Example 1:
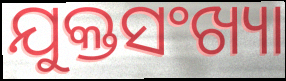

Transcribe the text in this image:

ଯୁକ୍ତସଂଖ୍ୟା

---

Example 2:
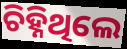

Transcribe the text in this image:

ଚିହ୍ନିଥିଲେ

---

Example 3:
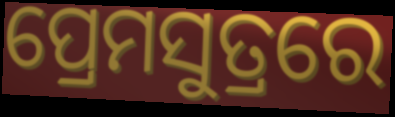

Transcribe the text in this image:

ପ୍ରେମସୁତ୍ରରେ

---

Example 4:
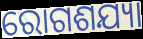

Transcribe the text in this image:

ରୋଗଶଯ୍ୟା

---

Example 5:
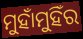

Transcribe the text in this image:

ମୁହାଁମୁହିଁର